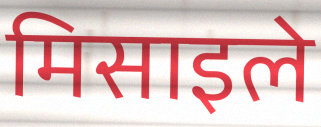
मिसाइले